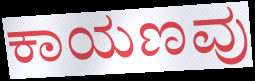
ಕಾಯಣವು